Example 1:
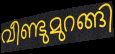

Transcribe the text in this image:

വീണ്ടുമുറങ്ങി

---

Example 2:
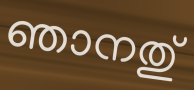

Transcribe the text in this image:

ഞാനതു്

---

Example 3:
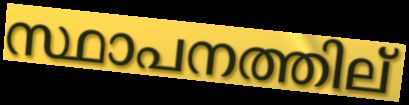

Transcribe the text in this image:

സ്ഥാപനത്തില്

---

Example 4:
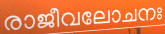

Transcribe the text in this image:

രാജീവലോചനഃ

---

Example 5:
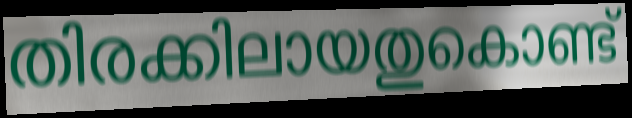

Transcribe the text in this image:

തിരക്കിലായതുകൊണ്ട്